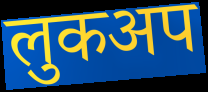
लुकअप